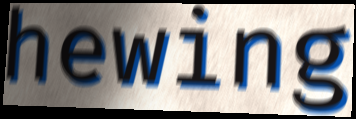
hewing